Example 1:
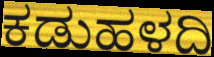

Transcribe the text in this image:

ಕಡುಹಳದಿ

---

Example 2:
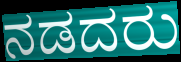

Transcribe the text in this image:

ನಡದರು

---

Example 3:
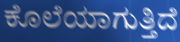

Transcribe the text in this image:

ಕೊಲೆಯಾಗುತ್ತಿದೆ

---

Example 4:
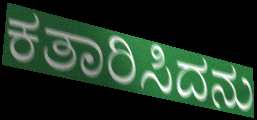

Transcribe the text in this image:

ಕತಾರಿಸಿದನು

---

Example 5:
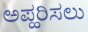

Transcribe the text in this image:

ಅಪ್ಹರಿಸಲು